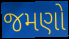
જમણો